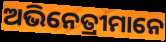
ଅଭିନେତ୍ରୀମାନେ